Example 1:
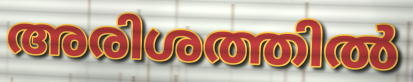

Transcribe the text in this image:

അരിശത്തിൽ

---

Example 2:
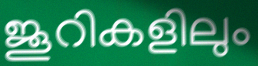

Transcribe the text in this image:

ജൂറികളിലും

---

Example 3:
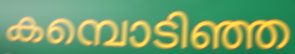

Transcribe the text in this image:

കമ്പൊടിഞ്ഞ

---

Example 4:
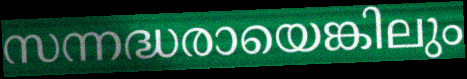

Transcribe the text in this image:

സന്നദ്ധരായെങ്കിലും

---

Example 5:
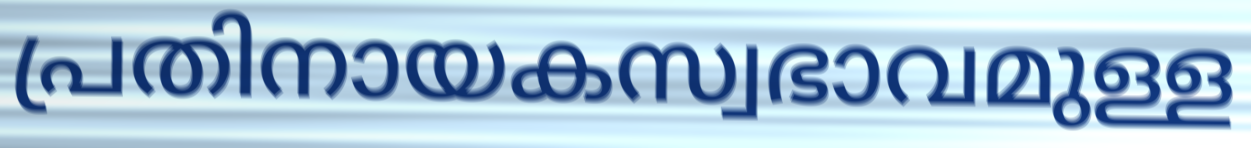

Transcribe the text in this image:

പ്രതിനായകസ്വഭാവമുള്ള